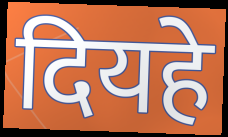
दियहे